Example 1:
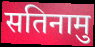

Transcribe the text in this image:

सतिनामु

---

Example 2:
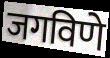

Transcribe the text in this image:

जगविणे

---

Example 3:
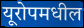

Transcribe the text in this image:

यूरोपमधील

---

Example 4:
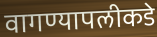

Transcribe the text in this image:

वागण्यापलीकडे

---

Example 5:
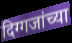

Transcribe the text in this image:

दिग्गजांच्या